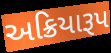
અક્રિયારૂપ